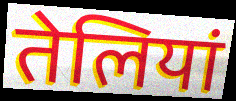
तेलियां